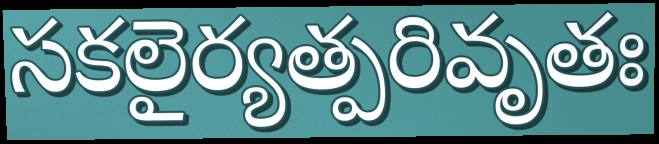
సకలైర్యత్పరివృతః